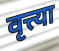
वृत्त्या